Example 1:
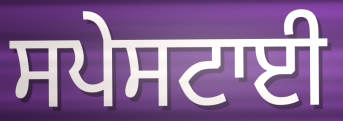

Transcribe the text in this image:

ਸਪੇਸਟਾਈ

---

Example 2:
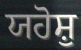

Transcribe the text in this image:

ਯਹੋਸ਼ੁ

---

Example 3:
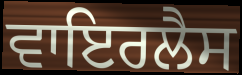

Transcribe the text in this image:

ਵਾਇਰਲੈਸ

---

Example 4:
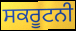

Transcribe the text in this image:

ਸਕਰੂਟਨੀ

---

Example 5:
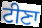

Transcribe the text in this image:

ਟੀਣਾ